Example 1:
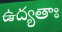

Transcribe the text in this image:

ఉద్యతాః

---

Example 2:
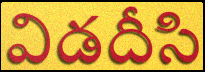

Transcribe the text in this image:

విడదీసి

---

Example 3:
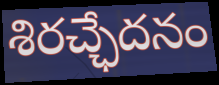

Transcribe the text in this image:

శిరచ్ఛేదనం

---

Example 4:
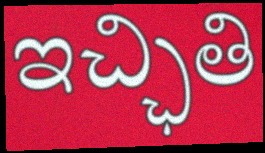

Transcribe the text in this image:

ఇచ్ఛితి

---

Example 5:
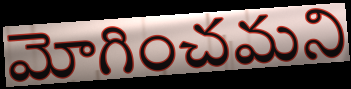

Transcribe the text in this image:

మోగించమని